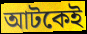
আটকেই